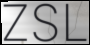
ZSL